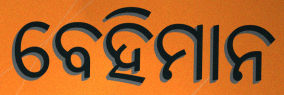
ବେହିମାନ